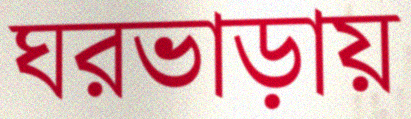
ঘরভাড়ায়